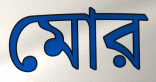
মোর